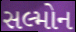
સલ્મોન